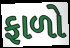
ફાળો